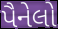
પૈનેલો